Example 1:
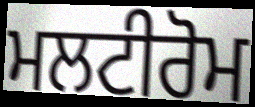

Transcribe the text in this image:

ਮਲਟੀਰੋਮ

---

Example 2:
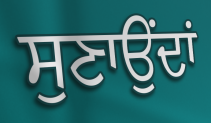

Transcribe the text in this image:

ਸੁਣਾਉਂਦਾਂ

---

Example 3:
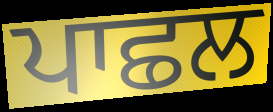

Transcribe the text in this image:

ਪਾਛਲ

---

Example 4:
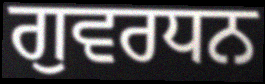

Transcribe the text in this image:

ਗੁਵਰਧਨ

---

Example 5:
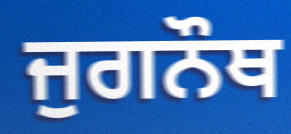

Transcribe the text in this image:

ਜੁਗਨੌਥ